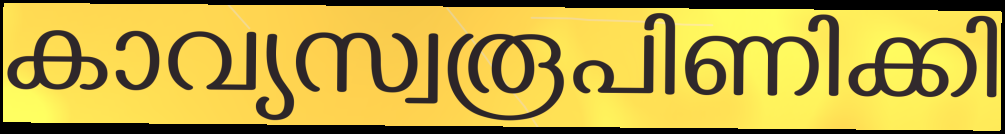
കാവ്യസ്വരൂപിണിക്കി